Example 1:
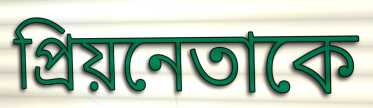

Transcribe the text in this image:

প্রিয়নেতাকে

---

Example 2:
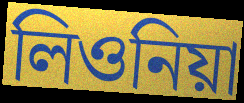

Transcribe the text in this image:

লিওনিয়া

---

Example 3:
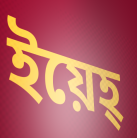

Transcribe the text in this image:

ইয়েহ্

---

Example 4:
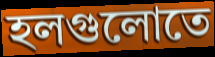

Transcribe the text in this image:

হলগুলোতে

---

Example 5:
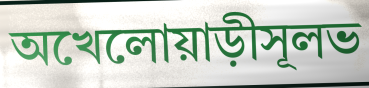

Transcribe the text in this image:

অখেলোয়াড়ীসূলভ